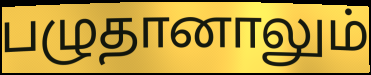
பழுதானாலும்